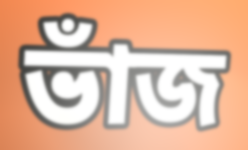
ভাঁজ